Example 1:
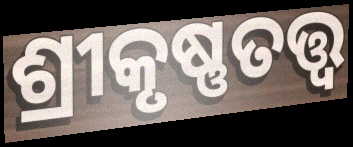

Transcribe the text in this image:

ଶ୍ରୀକୃଷ୍ଣତତ୍ତ୍ଵ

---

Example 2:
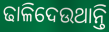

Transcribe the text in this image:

ଢାଳିଦେଉଥାନ୍ତି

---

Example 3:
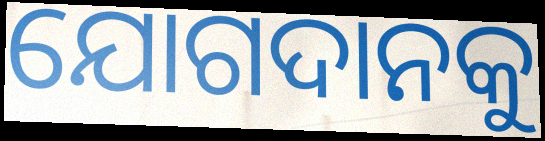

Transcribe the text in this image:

ଯୋଗଦାନକୁ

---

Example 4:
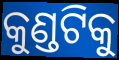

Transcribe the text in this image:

କୁଣ୍ଡଟିକୁ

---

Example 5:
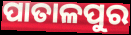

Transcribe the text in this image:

ପାତାଳପୁର